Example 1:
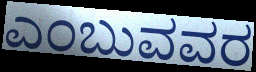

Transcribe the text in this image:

ಎಂಬುವವರ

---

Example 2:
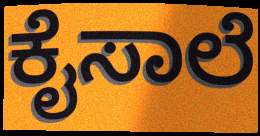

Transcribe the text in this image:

ಕೈಸಾಲೆ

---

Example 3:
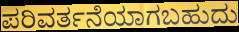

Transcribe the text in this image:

ಪರಿವರ್ತನೆಯಾಗಬಹುದು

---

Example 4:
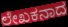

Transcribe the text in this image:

ಲೇಖಕನಾದ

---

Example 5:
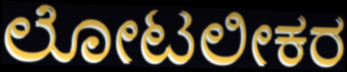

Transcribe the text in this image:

ಲೋಟಲೀಕರ